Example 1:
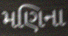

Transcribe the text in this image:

મણિના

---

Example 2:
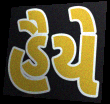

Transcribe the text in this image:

હૈયે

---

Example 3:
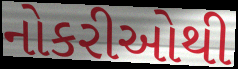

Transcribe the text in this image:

નોકરીઓથી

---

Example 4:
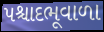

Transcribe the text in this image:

પશ્ચાદભૂવાળા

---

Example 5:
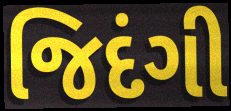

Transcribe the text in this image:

જિદંગી